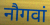
नौगवां